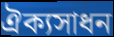
ঐক্যসাধন